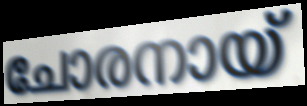
ചോരനായ്